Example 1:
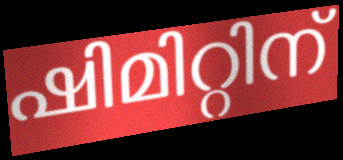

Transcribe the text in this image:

ഷിമിറ്റിന്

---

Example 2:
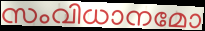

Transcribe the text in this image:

സംവിധാനമോ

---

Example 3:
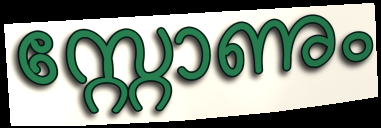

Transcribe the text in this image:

സ്റ്റോണും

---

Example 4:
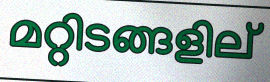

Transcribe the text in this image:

മറ്റിടങ്ങളില്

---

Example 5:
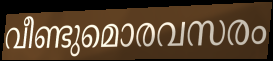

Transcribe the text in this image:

വീണ്ടുമൊരവസരം